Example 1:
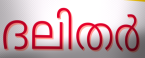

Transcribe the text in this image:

ദലിതർ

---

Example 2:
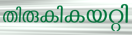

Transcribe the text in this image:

തിരുകികയറ്റി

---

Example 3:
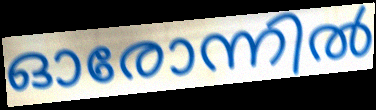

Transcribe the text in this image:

ഓരോന്നിൽ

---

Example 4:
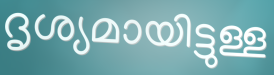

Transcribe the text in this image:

ദൃശ്യമായിട്ടുള്ള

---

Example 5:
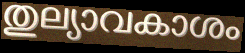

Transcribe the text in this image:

തുല്യാവകാശം